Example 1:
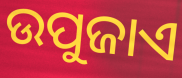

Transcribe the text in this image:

ଉପୁଜାଏ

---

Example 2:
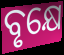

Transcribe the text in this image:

ବୃକ୍ଷେ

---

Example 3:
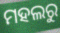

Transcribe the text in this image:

ମହଲରୁ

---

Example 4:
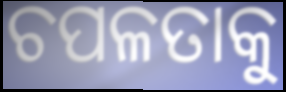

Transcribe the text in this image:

ଚପଳତାକୁ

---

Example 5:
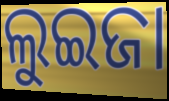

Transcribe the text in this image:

ଲୁଇଜା